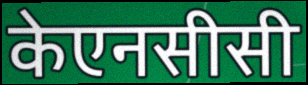
केएनसीसी